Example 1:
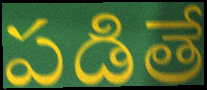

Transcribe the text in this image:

పడితే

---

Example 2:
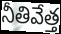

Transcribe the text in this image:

నీతివేత్త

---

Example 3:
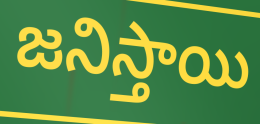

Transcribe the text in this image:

జనిస్తాయి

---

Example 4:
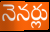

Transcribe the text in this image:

నెనర్లు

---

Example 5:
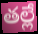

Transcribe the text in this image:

తల్లే